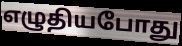
எழுதியபோது